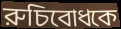
রুচিবোধকে